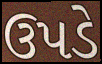
ઉપડે